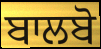
ਬਾਲਬੋ